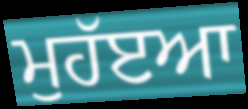
ਮੁਹੱੲਆ